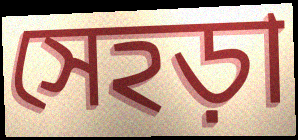
সেহড়া